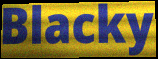
Blacky